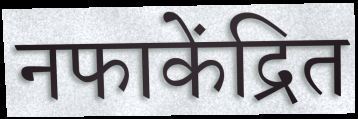
नफाकेंद्रित